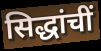
सिद्धांचीं